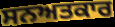
ਸਨਅਤਕਾਰ